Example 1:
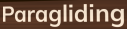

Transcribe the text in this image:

Paragliding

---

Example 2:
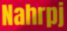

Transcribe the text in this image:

Nahrpj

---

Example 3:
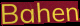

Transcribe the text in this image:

Bahen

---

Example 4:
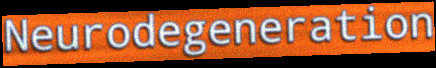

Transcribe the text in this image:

Neurodegeneration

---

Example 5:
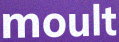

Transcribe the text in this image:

moult